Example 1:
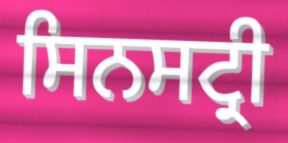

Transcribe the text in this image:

ਸਿਨਸਟ੍ਰੀ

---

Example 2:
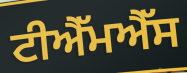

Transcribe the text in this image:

ਟੀਐੱਮਐੱਸ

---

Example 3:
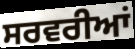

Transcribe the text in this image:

ਸਰਵਰੀਆਂ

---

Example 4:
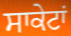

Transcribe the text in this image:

ਸਾਕੇਟਾਂ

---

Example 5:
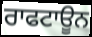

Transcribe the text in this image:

ਰਾਫਟਾਊਨ